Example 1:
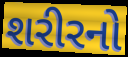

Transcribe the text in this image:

શરીરનો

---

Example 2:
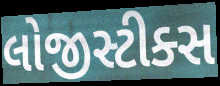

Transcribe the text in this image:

લોજીસ્ટીક્સ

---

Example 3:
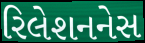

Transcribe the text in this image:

રિલેશનનેસ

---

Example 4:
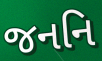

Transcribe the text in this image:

જનનિ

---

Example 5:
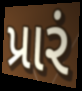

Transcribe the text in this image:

પ્રારં